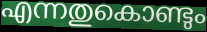
എന്നതുകൊണ്ടും